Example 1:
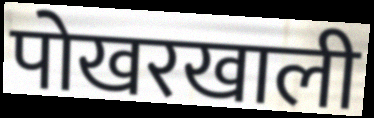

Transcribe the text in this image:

पोखरखाली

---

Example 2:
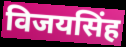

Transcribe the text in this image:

विजयसिंह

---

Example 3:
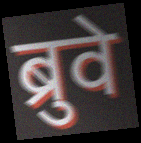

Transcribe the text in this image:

ब्रुवे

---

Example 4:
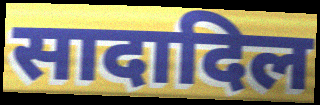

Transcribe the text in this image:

सादादिल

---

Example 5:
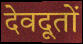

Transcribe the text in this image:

देवदूतों